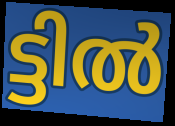
ട്ടിൽ